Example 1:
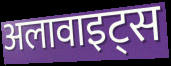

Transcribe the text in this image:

अलावाइट्स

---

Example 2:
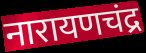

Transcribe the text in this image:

नारायणचंद्र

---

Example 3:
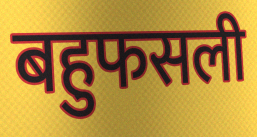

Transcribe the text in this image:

बहुफसली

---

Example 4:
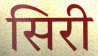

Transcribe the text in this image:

सिरी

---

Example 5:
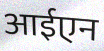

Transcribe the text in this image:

आईएन